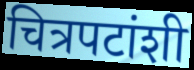
चित्रपटांशी